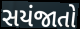
સયંજાતો